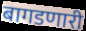
बागडणारी